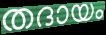
തദായം